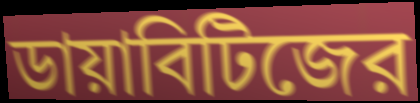
ডায়াবিটিজের